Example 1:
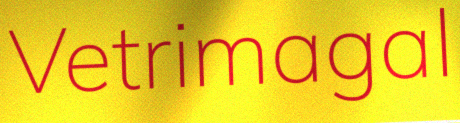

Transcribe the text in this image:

Vetrimagal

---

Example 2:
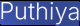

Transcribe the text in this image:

Puthiya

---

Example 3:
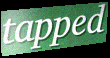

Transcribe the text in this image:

tapped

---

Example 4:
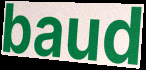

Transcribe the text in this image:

baud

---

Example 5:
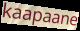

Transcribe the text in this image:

kaapaane